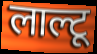
लाल्‍टू